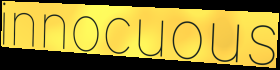
innocuous